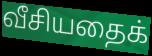
வீசியதைக்